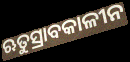
ଋତୁସ୍ରାବକାଳୀନ